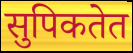
सुपिकतेत